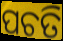
ପଚତି